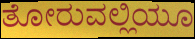
ತೋರುವಲ್ಲಿಯೂ